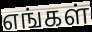
எங்கள்